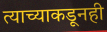
त्याच्याकडूनही